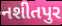
નશીતપુર